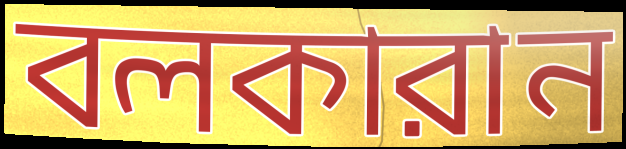
বলকারান